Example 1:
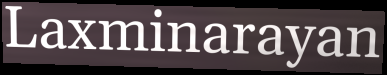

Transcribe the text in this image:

Laxminarayan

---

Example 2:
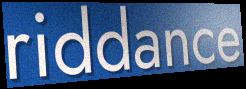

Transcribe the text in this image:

riddance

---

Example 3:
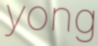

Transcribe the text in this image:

yong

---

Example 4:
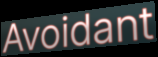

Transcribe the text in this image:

Avoidant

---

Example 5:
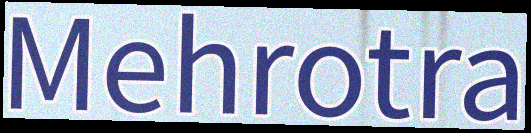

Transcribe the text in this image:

Mehrotra